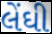
લેંઘી